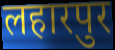
लहारपुर